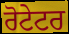
ਰੋਟੇਟਰ